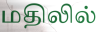
மதிலில்